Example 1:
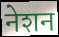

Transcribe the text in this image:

नेशन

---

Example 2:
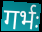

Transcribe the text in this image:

गर्भः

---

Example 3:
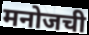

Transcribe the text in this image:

मनोजची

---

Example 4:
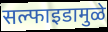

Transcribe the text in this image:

सल्फाइडामुळे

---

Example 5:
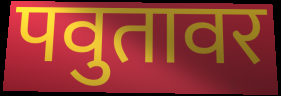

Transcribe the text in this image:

पवुतावर